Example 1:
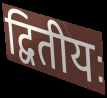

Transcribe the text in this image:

द्वितीयः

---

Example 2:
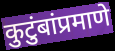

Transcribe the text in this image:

कुटुंबांप्रमाणे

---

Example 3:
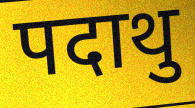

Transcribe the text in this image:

पदाथु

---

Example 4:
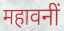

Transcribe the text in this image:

महावनीं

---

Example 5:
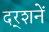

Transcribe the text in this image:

दर्शनें